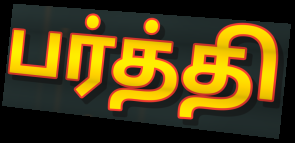
பர்த்தி